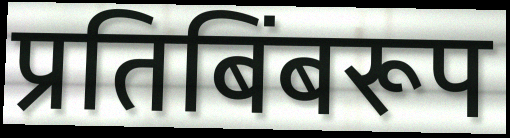
प्रतिबिंबरूप